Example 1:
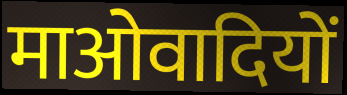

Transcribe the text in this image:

माओवादियों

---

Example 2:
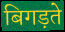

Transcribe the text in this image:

बिगड़ते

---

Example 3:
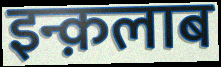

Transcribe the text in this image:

इन्क़लाब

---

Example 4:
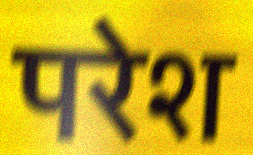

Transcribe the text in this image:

परेश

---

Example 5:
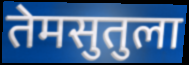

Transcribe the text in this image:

तेमसुतुला